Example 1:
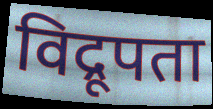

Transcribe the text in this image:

विद्रूपता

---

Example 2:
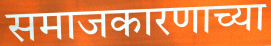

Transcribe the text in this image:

समाजकारणाच्या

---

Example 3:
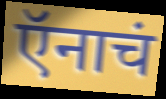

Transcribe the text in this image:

ऍनाचं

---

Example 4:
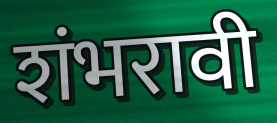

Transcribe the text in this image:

शंभरावी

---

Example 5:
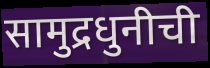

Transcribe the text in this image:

सामुद्रधुनीची